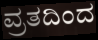
ವ್ರತದಿಂದ